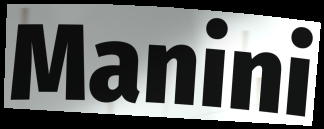
Manini